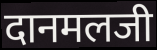
दानमलजी